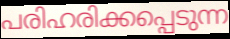
പരിഹരിക്കപ്പെടുന്ന